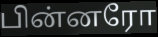
பின்னரோ